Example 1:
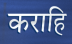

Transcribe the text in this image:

कराहि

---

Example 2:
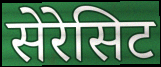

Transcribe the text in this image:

सेरेसिट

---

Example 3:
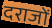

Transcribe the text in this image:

दराजों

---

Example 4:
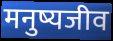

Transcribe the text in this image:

मनुष्यजीव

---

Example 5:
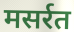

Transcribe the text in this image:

मसर्रत